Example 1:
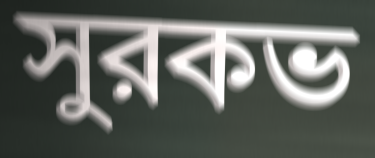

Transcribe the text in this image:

সুরকভ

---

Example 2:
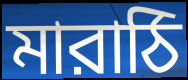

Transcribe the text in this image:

মারাঠি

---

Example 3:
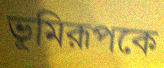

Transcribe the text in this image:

ভূমিরূপকে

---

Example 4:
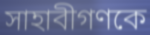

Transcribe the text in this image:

সাহাবীগণকে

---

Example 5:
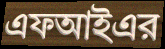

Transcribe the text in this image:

এফআইএর